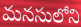
మనసులోని